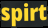
spirt